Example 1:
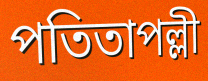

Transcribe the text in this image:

পতিতাপল্লী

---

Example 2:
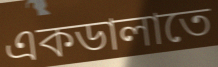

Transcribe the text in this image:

একডালাতে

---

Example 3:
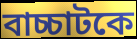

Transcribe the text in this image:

বাচ্চাটকে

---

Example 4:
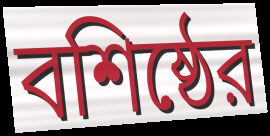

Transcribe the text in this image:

বশিষ্ঠের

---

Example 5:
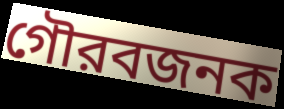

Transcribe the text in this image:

গৌরবজনক